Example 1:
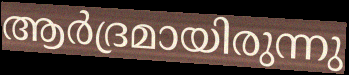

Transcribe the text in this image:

ആർദ്രമായിരുന്നു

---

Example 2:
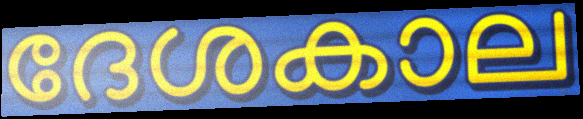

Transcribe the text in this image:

ദേശകാല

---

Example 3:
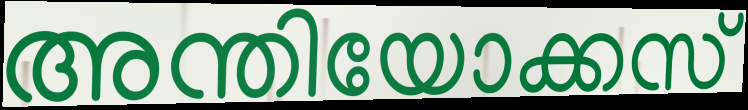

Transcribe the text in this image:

അന്തിയോക്കസ്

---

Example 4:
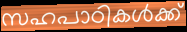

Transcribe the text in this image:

സഹപാഠികൾക്ക്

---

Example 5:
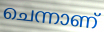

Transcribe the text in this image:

ചെന്നാണ്